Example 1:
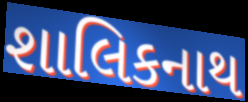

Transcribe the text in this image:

શાલિકનાથ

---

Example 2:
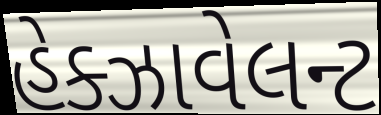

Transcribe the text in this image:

હેક્ઝાવેલન્ટ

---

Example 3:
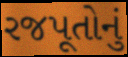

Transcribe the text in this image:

રજપૂતોનું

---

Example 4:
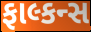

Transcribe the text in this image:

ફાલ્કન્સ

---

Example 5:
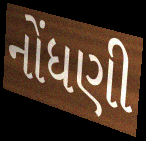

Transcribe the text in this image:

નોંધણી